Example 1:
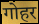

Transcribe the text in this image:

गोहर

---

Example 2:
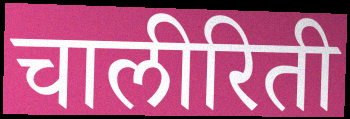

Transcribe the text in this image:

चालीरिती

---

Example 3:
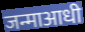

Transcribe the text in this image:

जन्माआधी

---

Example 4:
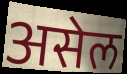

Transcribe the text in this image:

असेल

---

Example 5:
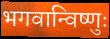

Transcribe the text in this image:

भगवान्विष्णुः